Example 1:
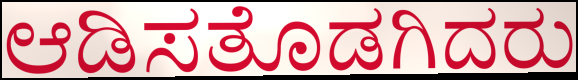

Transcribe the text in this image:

ಆಡಿಸತೊಡಗಿದರು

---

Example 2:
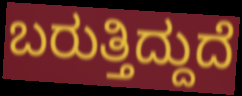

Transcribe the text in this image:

ಬರುತ್ತಿದ್ದುದೆ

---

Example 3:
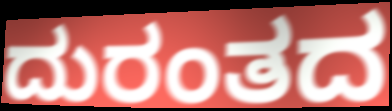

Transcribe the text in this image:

ದುರಂತದ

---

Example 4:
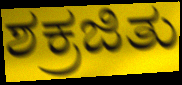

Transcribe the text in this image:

ಶಕ್ರಜಿತು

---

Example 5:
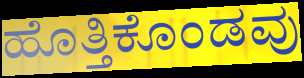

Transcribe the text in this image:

ಹೊತ್ತಿಕೊಂಡವು